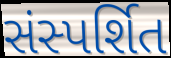
સંસ્પર્શિત